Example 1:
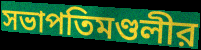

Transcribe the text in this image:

সভাপতিমণ্ডলীর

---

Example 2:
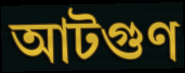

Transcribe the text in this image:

আটগুণ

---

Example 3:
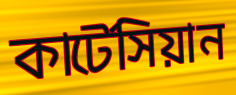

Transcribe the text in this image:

কার্টেসিয়ান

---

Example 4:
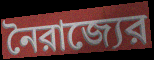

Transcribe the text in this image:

নৈরাজ্যের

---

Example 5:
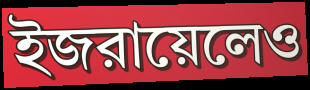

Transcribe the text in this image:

ইজরায়েলেও